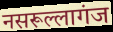
नसरूल्लागंज